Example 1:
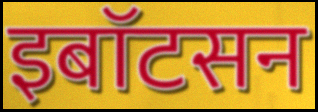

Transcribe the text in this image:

इबॉटसन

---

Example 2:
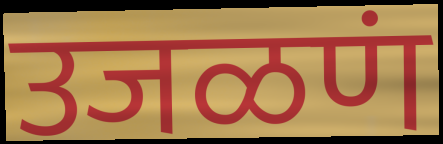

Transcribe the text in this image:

उजळणं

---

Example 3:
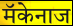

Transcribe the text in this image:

मॅकेनाज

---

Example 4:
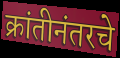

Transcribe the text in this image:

क्रांतीनंतरचे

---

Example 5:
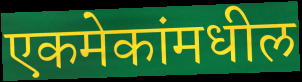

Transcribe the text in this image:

एकमेकांमधील